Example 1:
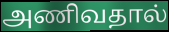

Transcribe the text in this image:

அணிவதால்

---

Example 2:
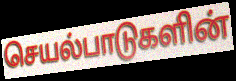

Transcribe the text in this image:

செயல்பாடுகளின்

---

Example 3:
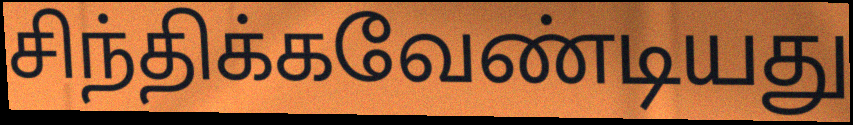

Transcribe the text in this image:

சிந்திக்கவேண்டியது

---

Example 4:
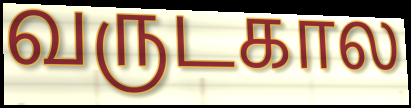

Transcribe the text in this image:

வருடகால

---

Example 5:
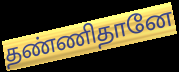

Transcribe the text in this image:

தண்ணிதானே